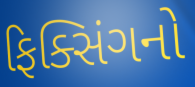
ફિક્સિંગનો